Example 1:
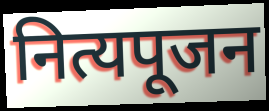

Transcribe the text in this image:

नित्यपूजन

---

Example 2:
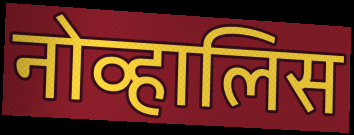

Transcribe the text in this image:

नोव्हालिस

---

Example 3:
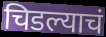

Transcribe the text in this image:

चिडल्याचं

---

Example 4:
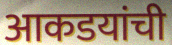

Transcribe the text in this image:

आकडयांची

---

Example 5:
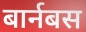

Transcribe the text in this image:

बार्नबस